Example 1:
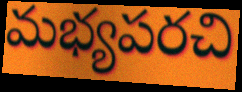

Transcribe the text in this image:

మభ్యపరచి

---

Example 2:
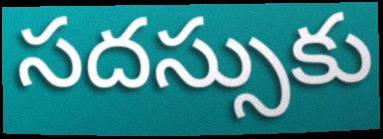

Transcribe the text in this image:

సదస్సుకు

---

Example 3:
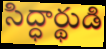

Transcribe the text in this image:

సిద్ధార్థుడి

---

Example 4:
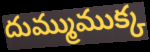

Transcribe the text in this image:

దుమ్ముముక్క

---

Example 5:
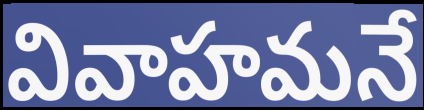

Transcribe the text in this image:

వివాహమనే